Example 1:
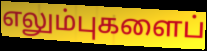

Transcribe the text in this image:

எலும்புகளைப்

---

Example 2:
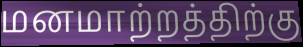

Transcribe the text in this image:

மனமாற்றத்திற்கு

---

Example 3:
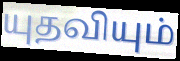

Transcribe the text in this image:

யுதவியும்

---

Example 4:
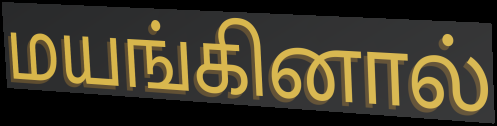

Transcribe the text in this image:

மயங்கினால்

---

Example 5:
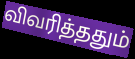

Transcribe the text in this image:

விவரித்ததும்